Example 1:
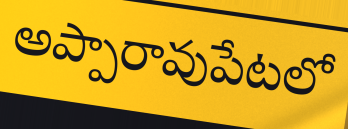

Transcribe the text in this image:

అప్పారావుపేటలో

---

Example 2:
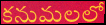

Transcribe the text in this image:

కనుమలలో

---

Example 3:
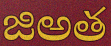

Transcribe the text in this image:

జిఅత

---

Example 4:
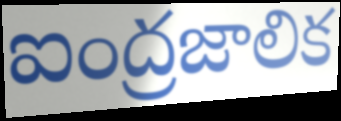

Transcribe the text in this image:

ఐంద్రజాలిక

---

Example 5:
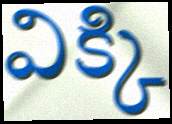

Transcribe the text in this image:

విక్కి